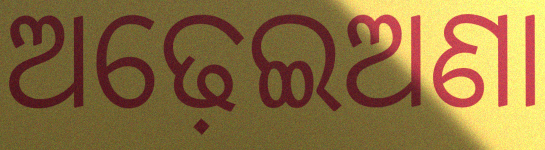
ଅଢ଼େଇଅଣା